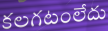
కలగటంలేదు